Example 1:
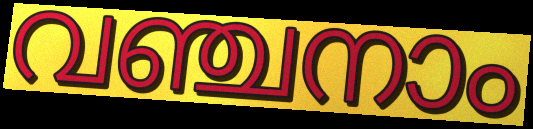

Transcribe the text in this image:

വഞ്ചനാം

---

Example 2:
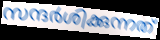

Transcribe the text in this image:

സന്ദർശിക്കുന്നത്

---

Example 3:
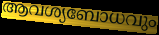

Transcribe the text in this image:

ആവശ്യബോധവും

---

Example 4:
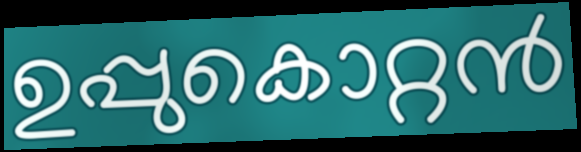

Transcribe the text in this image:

ഉപ്പുകൊറ്റൻ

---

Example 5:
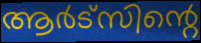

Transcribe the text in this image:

ആർട്സിന്റെ